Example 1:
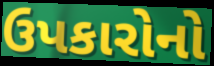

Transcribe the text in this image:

ઉપકારોનો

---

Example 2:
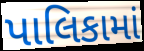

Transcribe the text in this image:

પાલિકામાં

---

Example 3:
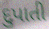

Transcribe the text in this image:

દુપાતી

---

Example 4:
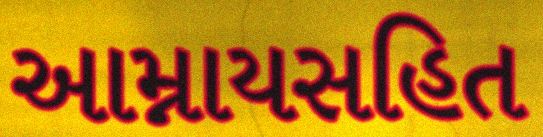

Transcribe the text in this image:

આમ્નાયસહિત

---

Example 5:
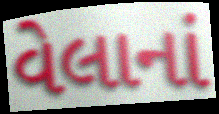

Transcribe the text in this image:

વેલાનાં